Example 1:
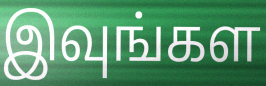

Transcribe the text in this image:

இவுங்கள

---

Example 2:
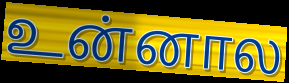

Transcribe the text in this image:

உன்னால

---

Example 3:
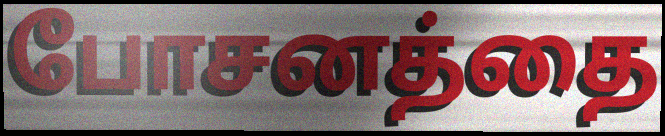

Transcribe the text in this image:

போசனத்தை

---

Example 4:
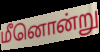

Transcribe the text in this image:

மீனொன்று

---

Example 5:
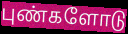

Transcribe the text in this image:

புண்களோடு